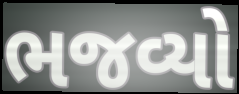
ભજવ્યો